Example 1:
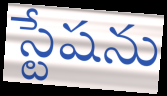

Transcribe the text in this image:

స్టేషను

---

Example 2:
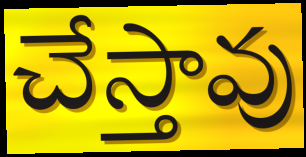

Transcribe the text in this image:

చేస్తావు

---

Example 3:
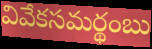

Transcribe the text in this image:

వివేకసమర్థంబు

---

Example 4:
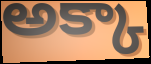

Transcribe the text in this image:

అక్కా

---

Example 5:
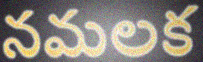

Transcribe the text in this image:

నమలక